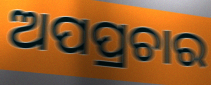
ଅପପ୍ରଚାର